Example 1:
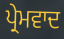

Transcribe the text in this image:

ਪ੍ਰੇਮਵਾਦ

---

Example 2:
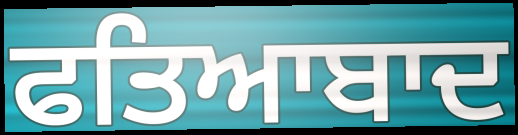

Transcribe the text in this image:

ਫਤਿਆਬਾਦ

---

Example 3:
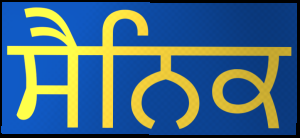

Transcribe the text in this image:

ਸੈਨਿਕ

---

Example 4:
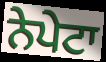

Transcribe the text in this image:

ਨੇਪੇਟਾ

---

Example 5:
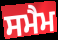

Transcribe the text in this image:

ਸਮੈਮ